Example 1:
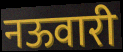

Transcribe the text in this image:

नऊवारी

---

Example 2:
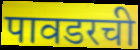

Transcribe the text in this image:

पावडरची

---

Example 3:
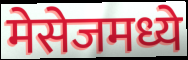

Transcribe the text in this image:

मेसेजमध्ये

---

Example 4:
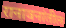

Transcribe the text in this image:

रानावनांतील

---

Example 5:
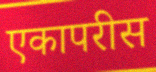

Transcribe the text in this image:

एकापरीस